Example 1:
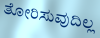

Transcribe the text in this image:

ತೋರಿಸುವುದಿಲ್ಲ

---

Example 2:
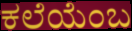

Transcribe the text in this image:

ಕಲೆಯೆಂಬ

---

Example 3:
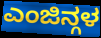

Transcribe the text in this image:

ಎಂಜಿನ್ಗಳ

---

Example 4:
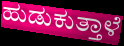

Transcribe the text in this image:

ಹುಡುಕುತ್ತಾಳೆ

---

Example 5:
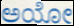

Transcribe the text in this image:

ಅಯೋ